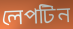
লেপটিন